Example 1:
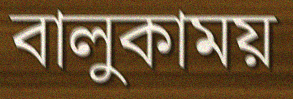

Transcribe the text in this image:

বালুকাময়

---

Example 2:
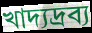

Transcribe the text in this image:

খাদ্যদ্রব্য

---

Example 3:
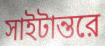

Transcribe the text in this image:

সাইটান্তরে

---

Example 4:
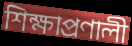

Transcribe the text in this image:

শিক্ষাপ্রণালী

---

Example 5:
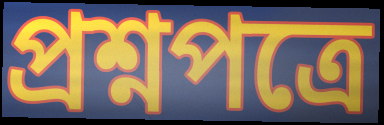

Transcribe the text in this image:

প্রশ্নপত্রে